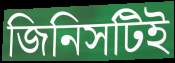
জিনিসটিই